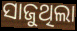
ସାଜୁଥିଲା